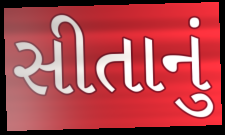
સીતાનું